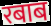
रबाब